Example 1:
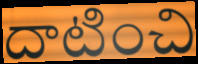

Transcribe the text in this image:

దాటించి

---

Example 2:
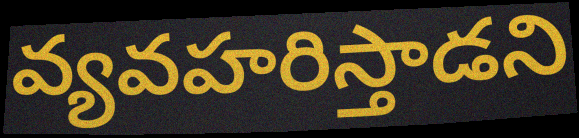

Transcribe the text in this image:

వ్యవహరిస్తాడని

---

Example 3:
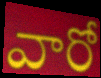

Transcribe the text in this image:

వారో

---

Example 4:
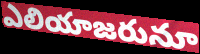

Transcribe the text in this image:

ఎలియాజరునూ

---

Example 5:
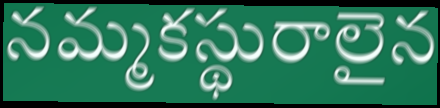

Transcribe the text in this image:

నమ్మకస్థురాలైన